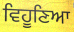
ਵਿਹੂਣਿਆ